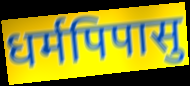
धर्मपिपासु